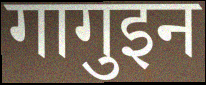
गागुइन